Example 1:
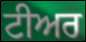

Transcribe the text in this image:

ਟੀਅਰ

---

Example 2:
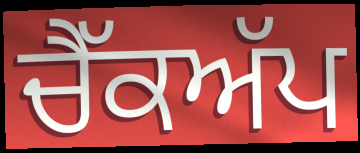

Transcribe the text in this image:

ਚੈੱਕਅੱਪ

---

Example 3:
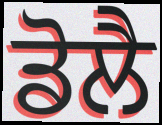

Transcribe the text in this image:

ਡੋਲੈ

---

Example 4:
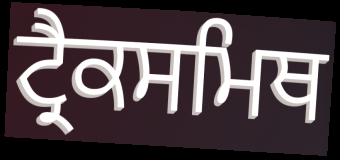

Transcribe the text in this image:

ਟ੍ਰੈਕਸਮਿਥ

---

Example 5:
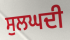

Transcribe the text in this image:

ਸੁਲਘਦੀ